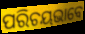
ପରିଚୟଭାବେ